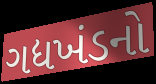
ગદ્યખંડનો